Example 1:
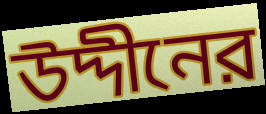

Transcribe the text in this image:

উদ্দীনের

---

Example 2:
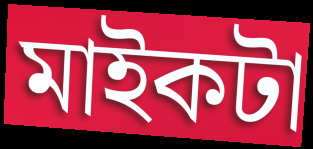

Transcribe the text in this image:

মাইকটা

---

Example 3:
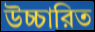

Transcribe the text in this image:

উচ্চারিত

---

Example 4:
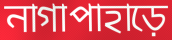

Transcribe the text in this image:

নাগাপাহাড়ে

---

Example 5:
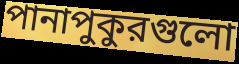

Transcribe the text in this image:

পানাপুকুরগুলো